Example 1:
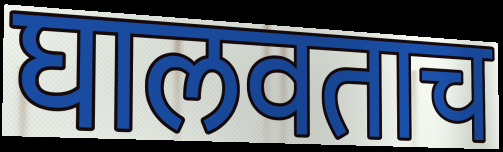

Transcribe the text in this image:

घालवताच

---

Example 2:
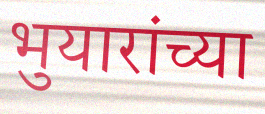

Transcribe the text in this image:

भुयारांच्या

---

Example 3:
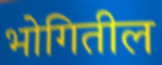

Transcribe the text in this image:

भोगितील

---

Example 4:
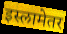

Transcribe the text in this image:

इस्लामेतर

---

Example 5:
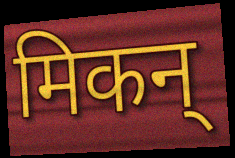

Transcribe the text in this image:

मिकन्